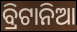
ବ୍ରିଟାନିଆ